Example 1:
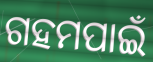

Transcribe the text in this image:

ଗହମପାଇଁ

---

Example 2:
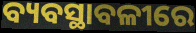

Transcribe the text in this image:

ବ୍ୟବସ୍ଥାବଳୀରେ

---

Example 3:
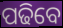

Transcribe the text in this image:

ପଢିବେ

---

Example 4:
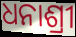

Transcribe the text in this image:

ଧନାଶ୍ରୀ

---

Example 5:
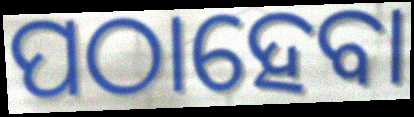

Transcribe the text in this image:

ପଠାହେବା